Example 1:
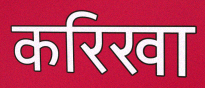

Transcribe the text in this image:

करिखा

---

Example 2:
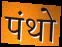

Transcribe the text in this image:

पंथो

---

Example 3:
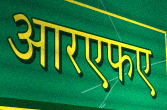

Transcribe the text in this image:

आरएफए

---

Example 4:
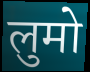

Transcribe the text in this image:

लुमो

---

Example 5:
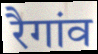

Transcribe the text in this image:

रैगांव